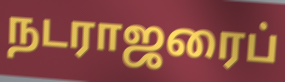
நடராஜரைப்